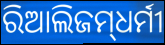
ରିଆଲିଜମ୍‌ଧର୍ମୀ